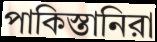
পাকিস্তানিরা